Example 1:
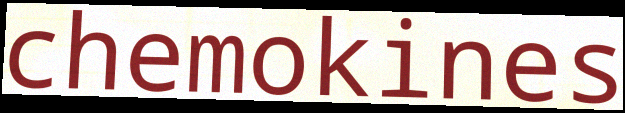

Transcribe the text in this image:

chemokines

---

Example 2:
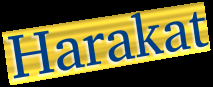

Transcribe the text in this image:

Harakat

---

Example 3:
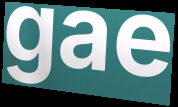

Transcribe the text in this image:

gae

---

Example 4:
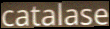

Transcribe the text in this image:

catalase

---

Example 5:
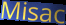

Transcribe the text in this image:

Misac